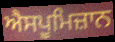
ਐਸਪੂਮਿਜ਼ਾਨ